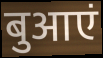
बुआएं